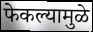
फेकल्यामुळे